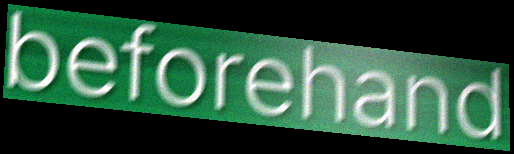
beforehand